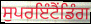
ਸੁਪਰਇੰਟੈਂਡਿੰਗ